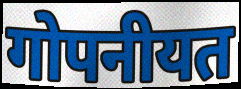
गोपनीयत